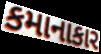
કમાનાકાર